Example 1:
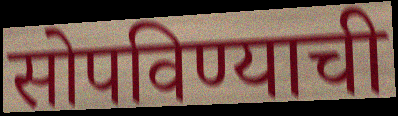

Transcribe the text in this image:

सोपविण्याची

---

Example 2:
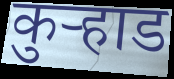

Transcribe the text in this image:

कुऱ्हाड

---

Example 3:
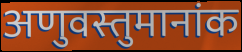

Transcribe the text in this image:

अणुवस्तुमानांक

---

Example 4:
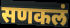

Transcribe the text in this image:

सणकलं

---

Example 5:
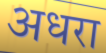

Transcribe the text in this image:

अधरा